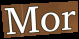
Mor